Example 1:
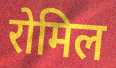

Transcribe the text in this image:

रोमिल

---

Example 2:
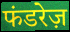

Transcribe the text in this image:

फंडरेज़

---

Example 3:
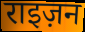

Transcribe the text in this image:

राइज़न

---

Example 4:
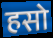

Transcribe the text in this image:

हसो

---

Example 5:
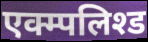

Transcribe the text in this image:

एक्म्पलिश्ड